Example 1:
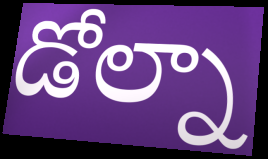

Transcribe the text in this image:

డోల్నా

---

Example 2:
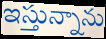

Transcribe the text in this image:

ఇస్తున్నాను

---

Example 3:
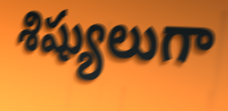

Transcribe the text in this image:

శిష్యులుగా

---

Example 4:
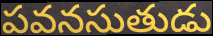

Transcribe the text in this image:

పవనసుతుడు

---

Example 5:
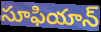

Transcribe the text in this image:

సూఫియాన్